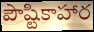
పౌష్టికాహార